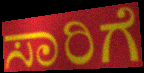
ಸಾರಿಗೆ